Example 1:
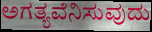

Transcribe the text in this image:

ಅಗತ್ಯವೆನಿಸುವುದು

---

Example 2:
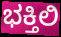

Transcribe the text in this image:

ಭಕ್ತಿಲಿ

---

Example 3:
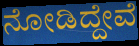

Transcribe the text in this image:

ನೋಡಿದ್ದೇವೆ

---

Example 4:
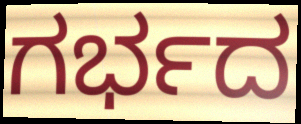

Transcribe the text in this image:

ಗರ್ಭದ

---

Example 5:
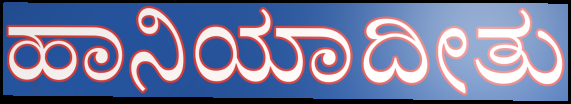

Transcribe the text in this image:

ಹಾನಿಯಾದೀತು